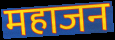
महाजन